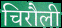
चिरौली